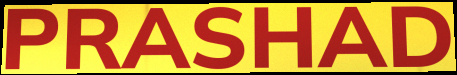
PRASHAD